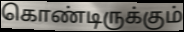
கொண்டிருக்கும்